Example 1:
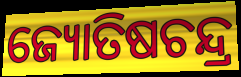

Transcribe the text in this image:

ଜ୍ୟୋତିଷଚନ୍ଦ୍ର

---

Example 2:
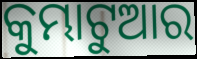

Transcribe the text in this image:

କୁମ୍ଭାଟୁଆର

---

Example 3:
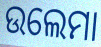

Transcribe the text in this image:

ଉଲେମା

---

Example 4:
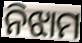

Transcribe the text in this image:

ନିଝାମ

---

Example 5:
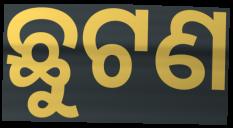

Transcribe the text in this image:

ଛୁଟଣ